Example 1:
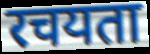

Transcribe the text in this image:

रचयता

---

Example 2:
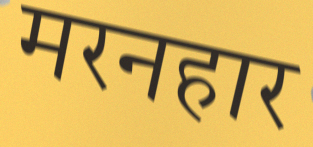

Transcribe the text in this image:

मरनहार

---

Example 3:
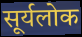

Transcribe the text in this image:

सूर्यलोक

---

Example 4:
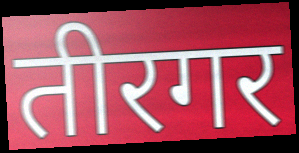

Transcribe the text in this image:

तीरगर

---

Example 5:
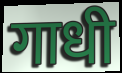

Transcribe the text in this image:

गाधी